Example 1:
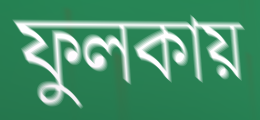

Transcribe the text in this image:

ফুলকায়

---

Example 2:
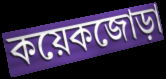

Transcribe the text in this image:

কয়েকজোড়া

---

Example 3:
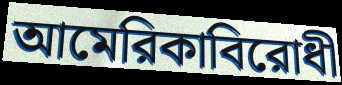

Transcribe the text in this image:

আমেরিকাবিরোধী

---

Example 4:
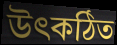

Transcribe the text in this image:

উৎকঠিত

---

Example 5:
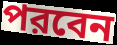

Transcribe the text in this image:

পরবেন